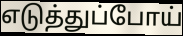
எடுத்துப்போய்